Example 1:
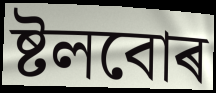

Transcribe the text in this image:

ষ্টলবোৰ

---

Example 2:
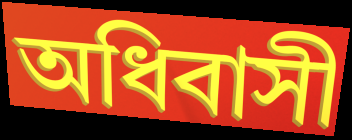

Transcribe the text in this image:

অধিবাসী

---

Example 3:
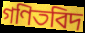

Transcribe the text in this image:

গণিতবিদ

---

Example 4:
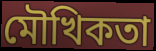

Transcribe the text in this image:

মৌখিকতা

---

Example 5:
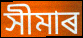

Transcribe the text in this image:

সীমাৰ